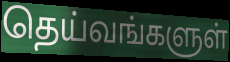
தெய்வங்களுள்